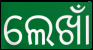
ଲେଖାଁ